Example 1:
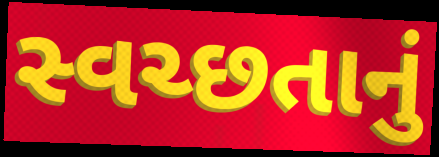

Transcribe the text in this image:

સ્વચ્છતાનું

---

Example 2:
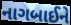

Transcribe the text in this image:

નાગબાઈને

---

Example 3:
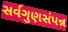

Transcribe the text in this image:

સર્વગુણસંપન્ન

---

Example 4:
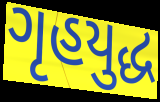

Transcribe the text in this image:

ગૃહયુદ્ધ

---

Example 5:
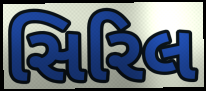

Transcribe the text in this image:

સિરિલ